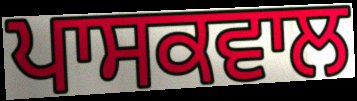
ਪਾਸਕਵਾਲ